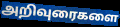
அறிவுரைகளை